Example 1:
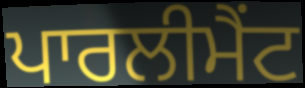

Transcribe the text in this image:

ਪਾਰਲੀਮੈਂਟ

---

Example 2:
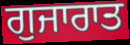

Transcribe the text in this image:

ਗੁਜਾਰਾਤ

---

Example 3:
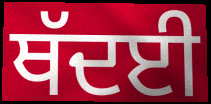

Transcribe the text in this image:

ਥੱਦਈ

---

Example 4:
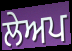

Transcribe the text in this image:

ਲੇਅਪ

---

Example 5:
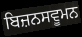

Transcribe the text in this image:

ਬਿਜ਼ਨਸਵੂਮਨ